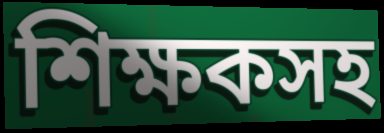
শিক্ষকসহ